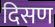
दिसण